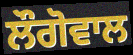
ਲੌਗੋਵਾਲ